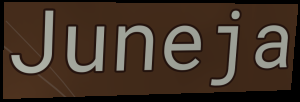
Juneja